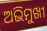
ଅଭିମୁଖୀ